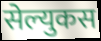
सेल्युकस